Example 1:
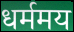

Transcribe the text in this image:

धर्ममय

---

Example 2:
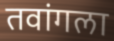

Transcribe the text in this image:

तवांगला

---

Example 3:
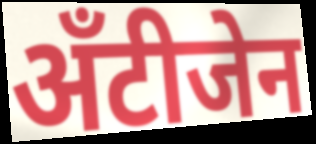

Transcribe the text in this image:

अँटीजेन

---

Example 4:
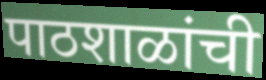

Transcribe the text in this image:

पाठशाळांची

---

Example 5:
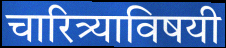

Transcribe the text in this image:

चारित्र्याविषयी